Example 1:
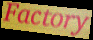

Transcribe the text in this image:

Factory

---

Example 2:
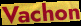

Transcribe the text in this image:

Vachon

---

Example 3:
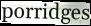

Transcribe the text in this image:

porridges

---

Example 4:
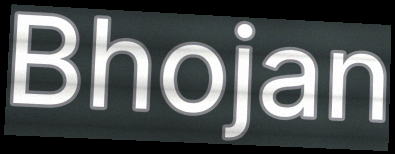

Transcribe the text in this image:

Bhojan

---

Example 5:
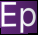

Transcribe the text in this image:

Ep